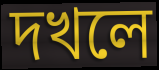
দখলে